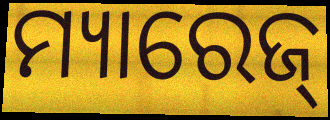
ମ୍ୟାରେଜ୍